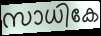
സാധികേ